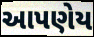
આપણેય